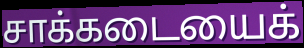
சாக்கடையைக்